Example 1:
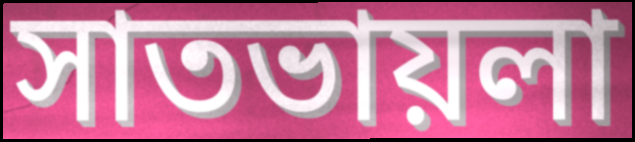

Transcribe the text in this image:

সাতভায়লা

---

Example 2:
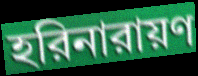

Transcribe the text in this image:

হরিনারায়ণ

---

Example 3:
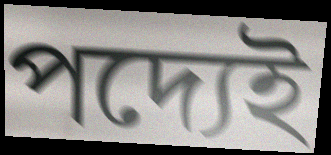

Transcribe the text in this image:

পদ্যেই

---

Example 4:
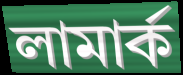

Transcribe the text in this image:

লামার্ক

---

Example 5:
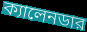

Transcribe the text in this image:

ক্যালেনডার